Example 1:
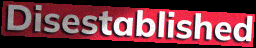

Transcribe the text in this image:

Disestablished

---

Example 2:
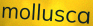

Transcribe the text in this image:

mollusca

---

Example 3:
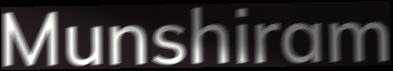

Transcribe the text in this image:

Munshiram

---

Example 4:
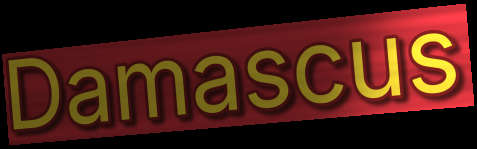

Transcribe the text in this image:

Damascus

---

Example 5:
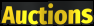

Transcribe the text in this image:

Auctions